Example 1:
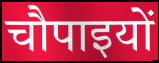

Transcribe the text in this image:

चौपाइयों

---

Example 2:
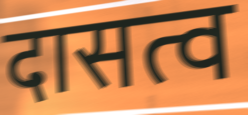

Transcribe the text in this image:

दासत्व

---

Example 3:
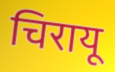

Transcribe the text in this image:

चिरायू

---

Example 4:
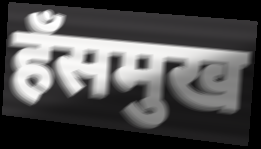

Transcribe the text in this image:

हँसमुख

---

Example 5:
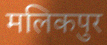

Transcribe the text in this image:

मलिकपुर